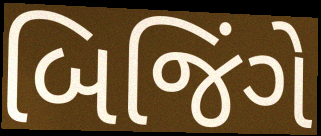
બિજિંગે